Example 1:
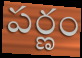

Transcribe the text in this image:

పర్ణం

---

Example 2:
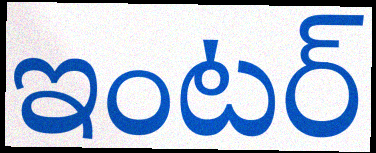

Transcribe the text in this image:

ఇంటర్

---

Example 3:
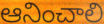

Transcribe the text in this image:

ఆనించాలి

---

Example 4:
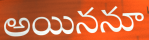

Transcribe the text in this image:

అయిననూ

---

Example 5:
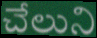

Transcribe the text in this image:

చేలుని